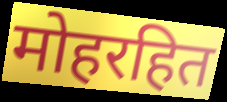
मोहरहित